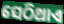
ସେଠିଥାଏ